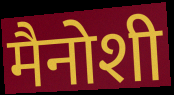
मैनोशी